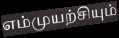
எம்முயற்சியும்